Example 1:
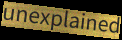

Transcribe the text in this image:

unexplained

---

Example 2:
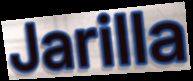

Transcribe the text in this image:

Jarilla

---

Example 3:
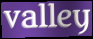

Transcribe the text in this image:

valley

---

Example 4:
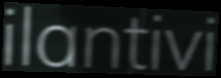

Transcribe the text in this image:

ilantivi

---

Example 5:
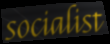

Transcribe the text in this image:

socialist